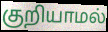
குறியாமல்